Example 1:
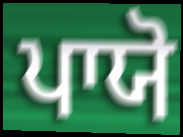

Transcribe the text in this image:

ਪਾਯੋ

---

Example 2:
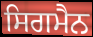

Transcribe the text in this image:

ਸਿਗਮੈਨ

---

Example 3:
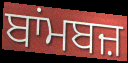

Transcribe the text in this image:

ਬਾਂਮਬਜ਼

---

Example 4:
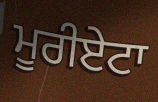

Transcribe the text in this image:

ਮੂਰੀਏਟਾ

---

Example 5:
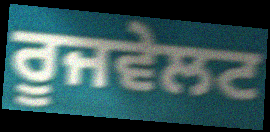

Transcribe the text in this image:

ਰੂਜਵੇਲਟ